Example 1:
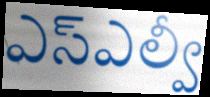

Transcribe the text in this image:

ఎస్ఎల్వీ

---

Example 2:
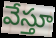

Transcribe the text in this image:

వేస్తూ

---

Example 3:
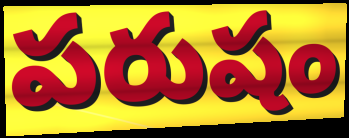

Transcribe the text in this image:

పరుషం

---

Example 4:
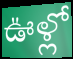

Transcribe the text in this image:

ఊళ్లో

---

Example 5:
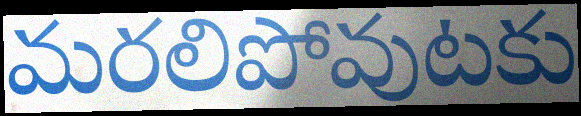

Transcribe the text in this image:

మరలిపోవుటకు